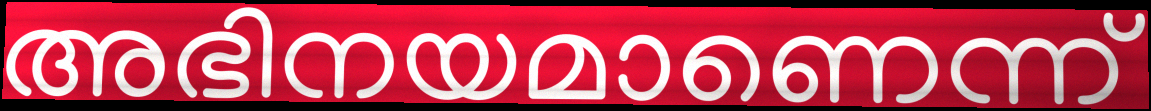
അഭിനയമാണെന്ന്